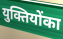
युक्तियोंका